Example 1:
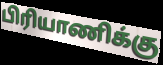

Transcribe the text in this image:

பிரியாணிக்கு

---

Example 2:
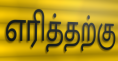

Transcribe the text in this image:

எரித்தற்கு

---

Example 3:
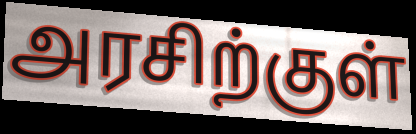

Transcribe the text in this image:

அரசிற்குள்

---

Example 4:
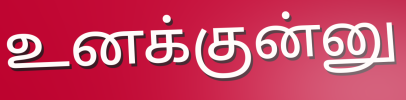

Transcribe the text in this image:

உனக்குன்னு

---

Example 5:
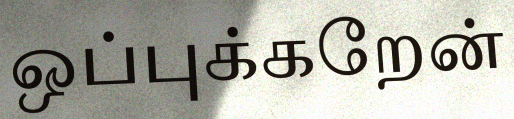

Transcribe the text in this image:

ஒப்புக்கறேன்